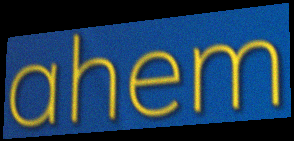
ahem